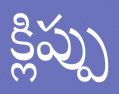
క్లిప్పు